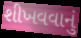
શીખવવાનું